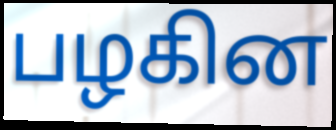
பழகின